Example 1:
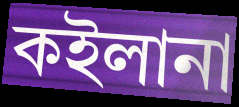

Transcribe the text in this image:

কইলানা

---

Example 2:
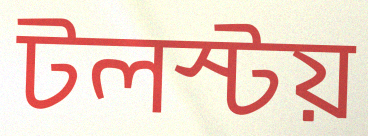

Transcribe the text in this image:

টলস্টয়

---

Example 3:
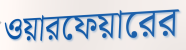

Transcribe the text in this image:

ওয়ারফেয়ারের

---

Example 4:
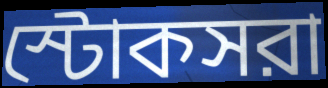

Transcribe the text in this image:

স্টোকসরা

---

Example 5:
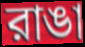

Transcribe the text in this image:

রাঙা